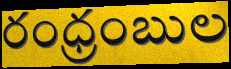
రంధ్రంబుల